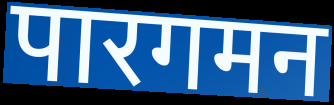
पारगमन